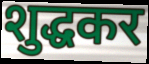
शुद्धकर